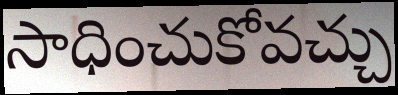
సాధించుకోవచ్చు